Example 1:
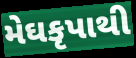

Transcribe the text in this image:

મેઘકૃપાથી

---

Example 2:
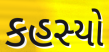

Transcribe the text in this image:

કહસ્યો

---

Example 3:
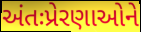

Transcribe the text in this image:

અંતઃપ્રેરણાઓને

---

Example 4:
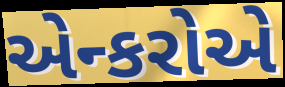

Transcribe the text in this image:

એન્કરોએ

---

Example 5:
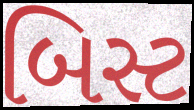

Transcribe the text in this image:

બિસ્ટ